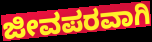
ಜೀವಪರವಾಗಿ